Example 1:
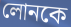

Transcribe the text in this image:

লোনকে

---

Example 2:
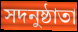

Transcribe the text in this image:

সদনুষ্ঠাতা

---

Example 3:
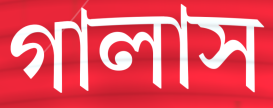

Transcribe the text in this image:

গালাস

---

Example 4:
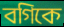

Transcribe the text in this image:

বগিকে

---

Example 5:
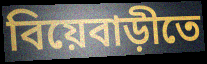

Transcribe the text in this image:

বিয়েবাড়ীতে